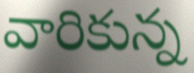
వారికున్న